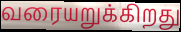
வரையறுக்கிறது